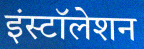
इंस्टॉलेशन